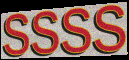
SSSS